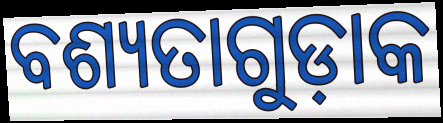
ବଶ୍ୟତାଗୁଡ଼ାକ